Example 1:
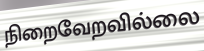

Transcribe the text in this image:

நிறைவேறவில்லை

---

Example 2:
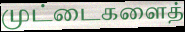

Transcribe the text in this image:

முட்டைகளைத்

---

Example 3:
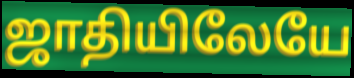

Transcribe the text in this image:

ஜாதியிலேயே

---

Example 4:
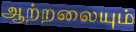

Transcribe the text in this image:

ஆற்றலையும்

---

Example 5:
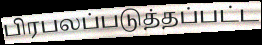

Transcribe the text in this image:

பிரபலப்படுத்தப்பட்ட